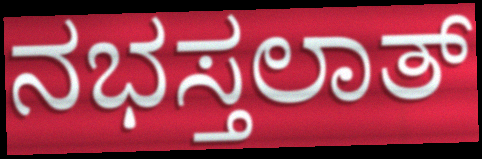
ನಭಸ್ತಲಾತ್